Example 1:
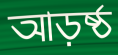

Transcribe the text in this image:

আড়ষ্ঠ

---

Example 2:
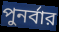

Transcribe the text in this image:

পুনর্বার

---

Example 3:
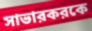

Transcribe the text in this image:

সাভারকরকে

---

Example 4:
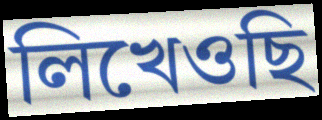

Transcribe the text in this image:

লিখেওছি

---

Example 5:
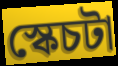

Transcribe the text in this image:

স্কেচটা